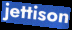
jettison